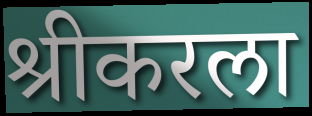
श्रीकरला